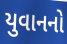
યુવાનનો